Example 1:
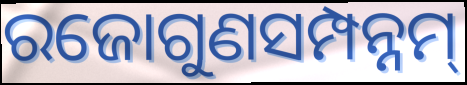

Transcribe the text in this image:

ରଜୋଗୁଣସମ୍ପନ୍ନମ୍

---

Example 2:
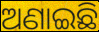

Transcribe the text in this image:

ଅଣାଇଛି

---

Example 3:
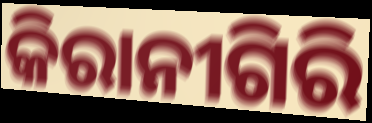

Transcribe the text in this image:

କିରାନୀଗିରି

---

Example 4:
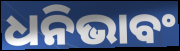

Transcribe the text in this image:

ଧନିଭାବଂ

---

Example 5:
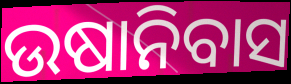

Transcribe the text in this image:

ଉଷାନିବାସ